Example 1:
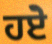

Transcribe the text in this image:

ਹਏੋ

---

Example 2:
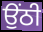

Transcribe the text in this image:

ਉਂਠੀ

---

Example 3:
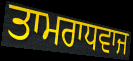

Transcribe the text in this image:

ਤਾਮਰਾਧਵਾਜ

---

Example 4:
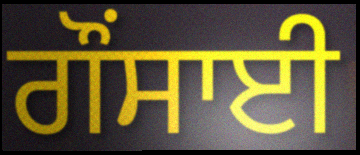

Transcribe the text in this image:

ਗੌਂਸਾਈ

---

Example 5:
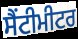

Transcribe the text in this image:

ਸੈਂਟੀਮੀਟਰ